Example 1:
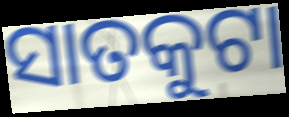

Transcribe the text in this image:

ସାତକୁଟା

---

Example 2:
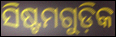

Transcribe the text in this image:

ସିଷ୍ଟମଗୁଡ଼ିକ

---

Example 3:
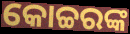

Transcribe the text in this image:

କୋଚ୍ଚରଙ୍କ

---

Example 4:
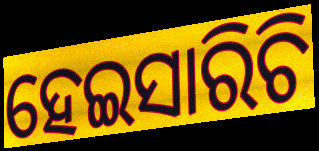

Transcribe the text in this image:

ହେଇସାରିଚି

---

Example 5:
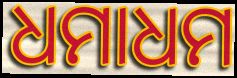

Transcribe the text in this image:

ଧମାଧମ